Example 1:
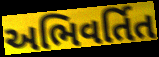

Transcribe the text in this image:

અભિવર્તિત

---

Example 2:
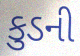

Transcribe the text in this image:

કુડની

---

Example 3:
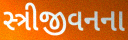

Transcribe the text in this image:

સ્ત્રીજીવનના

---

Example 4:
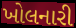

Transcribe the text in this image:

ખોલનારી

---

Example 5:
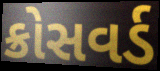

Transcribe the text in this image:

ક્રોસવર્ડ